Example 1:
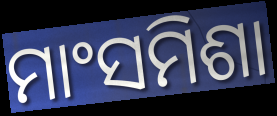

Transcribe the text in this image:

ମାଂସମିଶା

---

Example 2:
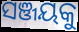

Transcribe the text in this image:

ସଞ୍ଜୟକୁ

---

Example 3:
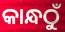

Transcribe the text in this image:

କାନ୍ଧଠୁଁ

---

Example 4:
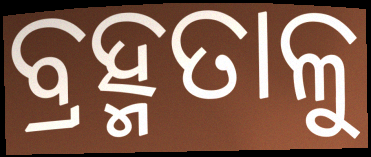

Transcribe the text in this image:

ବ୍ରହ୍ମତାଳୁ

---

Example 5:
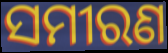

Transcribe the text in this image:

ସମୀରଣ